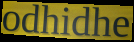
odhidhe